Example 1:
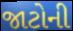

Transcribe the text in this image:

જાટોની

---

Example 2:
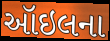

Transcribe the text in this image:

ઑઇલના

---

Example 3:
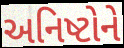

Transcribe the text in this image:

અનિષ્ટોને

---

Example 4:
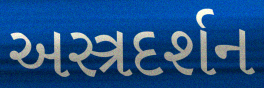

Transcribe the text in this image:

અસ્ત્રદર્શન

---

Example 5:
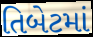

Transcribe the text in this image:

તિબેટમાં